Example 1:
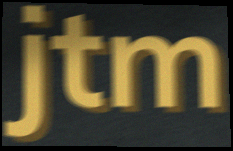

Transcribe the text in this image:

jtm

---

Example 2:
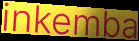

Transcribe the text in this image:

inkemba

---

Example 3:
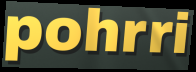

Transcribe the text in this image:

pohrri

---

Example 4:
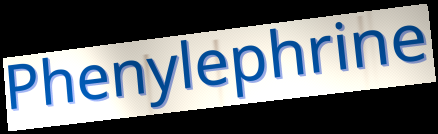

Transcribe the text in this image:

Phenylephrine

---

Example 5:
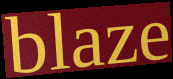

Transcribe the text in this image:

blaze